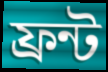
ফ্ৰন্ট